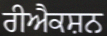
ਰੀਐਕਸ਼ਨ